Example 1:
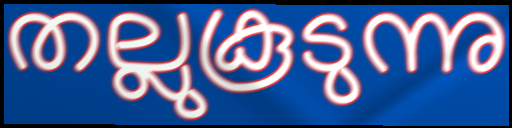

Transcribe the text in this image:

തല്ലുകൂടുന്നു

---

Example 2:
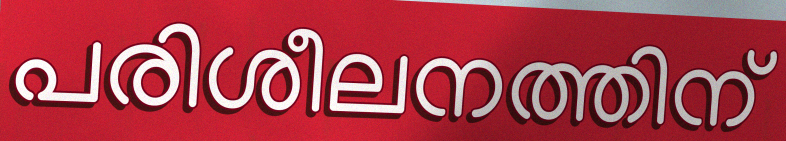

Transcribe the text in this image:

പരിശീലനത്തിന്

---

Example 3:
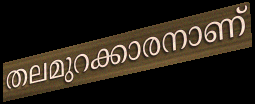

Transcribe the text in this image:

തലമുറക്കാരനാണ്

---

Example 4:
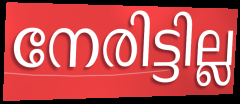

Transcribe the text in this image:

നേരിട്ടില്ല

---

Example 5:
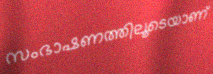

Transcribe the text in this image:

സംഭാഷണത്തിലൂടെയാണ്